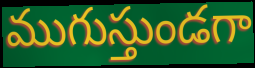
ముగుస్తుండగా